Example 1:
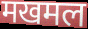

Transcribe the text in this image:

मखमल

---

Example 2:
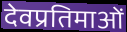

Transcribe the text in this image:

देवप्रतिमाओं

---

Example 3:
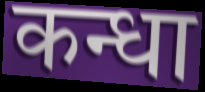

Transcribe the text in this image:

कन्धा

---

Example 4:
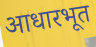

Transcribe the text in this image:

आधारभूत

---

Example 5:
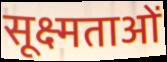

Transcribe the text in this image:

सूक्ष्मताओं